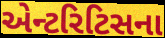
એન્ટરિટિસના